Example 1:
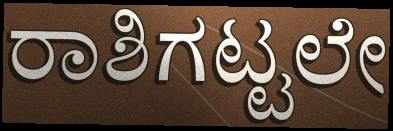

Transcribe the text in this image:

ರಾಶಿಗಟ್ಟಲೇ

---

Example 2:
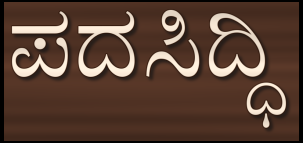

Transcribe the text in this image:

ಪದಸಿದ್ಧಿ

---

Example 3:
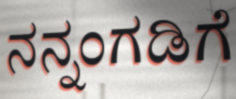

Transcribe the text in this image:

ನನ್ನಂಗಡಿಗೆ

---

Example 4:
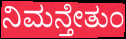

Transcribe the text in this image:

ನಿಮನ್ತೇತುಂ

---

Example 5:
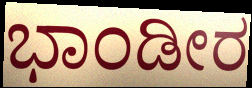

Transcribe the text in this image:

ಭಾಂಡೀರ